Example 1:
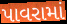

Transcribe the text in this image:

પાવરામાં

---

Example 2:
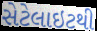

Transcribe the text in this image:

સેટેલાઇટથી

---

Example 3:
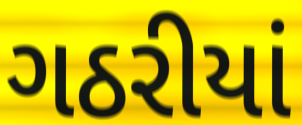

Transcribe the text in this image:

ગઠરીયાં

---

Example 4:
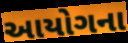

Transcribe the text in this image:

આયોગના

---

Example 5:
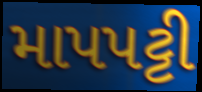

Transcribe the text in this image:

માપપટ્ટી